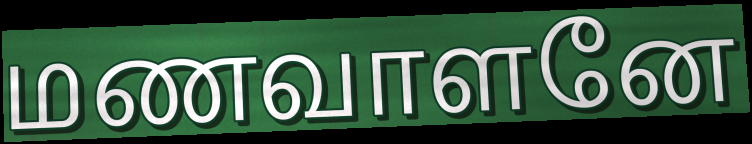
மணவாளனே